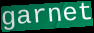
garnet